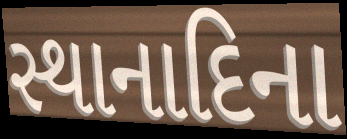
સ્થાનાદિના